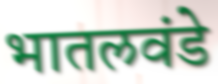
भातलवंडे